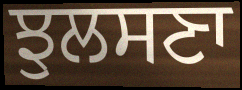
ਝੁਲਸਣਾ